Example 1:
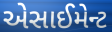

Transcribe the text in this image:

એસાઈમેન્ટ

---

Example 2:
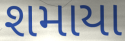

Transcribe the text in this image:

શમાયા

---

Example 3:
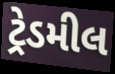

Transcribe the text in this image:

ટ્રેડમીલ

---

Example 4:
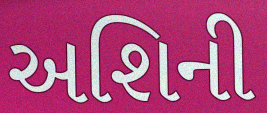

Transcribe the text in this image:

અશિની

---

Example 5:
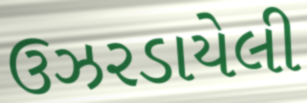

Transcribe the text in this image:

ઉઝરડાયેલી